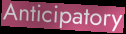
Anticipatory